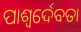
ପାଶ୍ୱର୍ଦେବତା